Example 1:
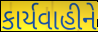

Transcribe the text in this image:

કાર્યવાહીને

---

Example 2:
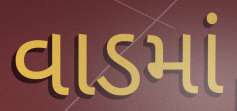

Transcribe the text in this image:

વાડમાં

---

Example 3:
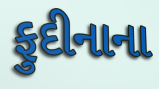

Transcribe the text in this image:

ફુદીનાના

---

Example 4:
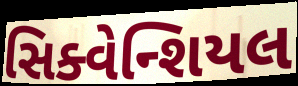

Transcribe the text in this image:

સિક્વેન્શિયલ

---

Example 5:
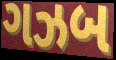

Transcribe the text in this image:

ગઝબ